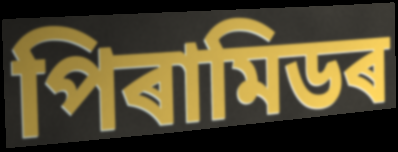
পিৰামিডৰ